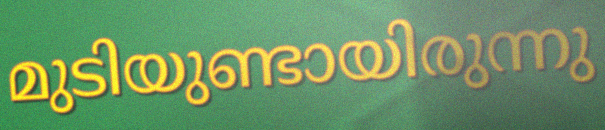
മുടിയുണ്ടായിരുന്നു